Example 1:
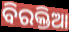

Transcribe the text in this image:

ବିରକ୍ତିଆ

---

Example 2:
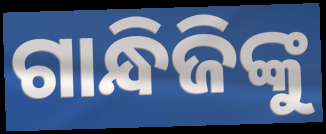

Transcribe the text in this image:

ଗାନ୍ଧିଜିଙ୍କୁ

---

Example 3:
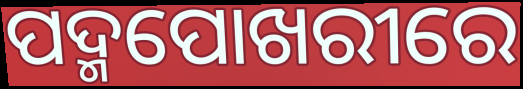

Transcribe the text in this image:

ପଦ୍ମପୋଖରୀରେ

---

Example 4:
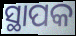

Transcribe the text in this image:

ସ୍ଥାପକ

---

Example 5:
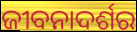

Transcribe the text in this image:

ଜୀବନାଦର୍ଶର